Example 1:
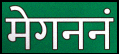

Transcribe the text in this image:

मेगननं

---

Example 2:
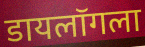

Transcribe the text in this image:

डायलॉगला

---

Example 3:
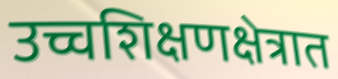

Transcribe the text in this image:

उच्चशिक्षणक्षेत्रात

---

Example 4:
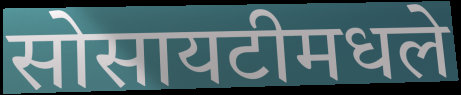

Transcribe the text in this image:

सोसायटीमधले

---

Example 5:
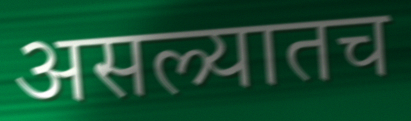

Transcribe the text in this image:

असल्यातच